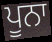
ਪੂਨਾ